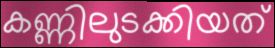
കണ്ണിലുടക്കിയത്